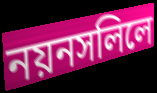
নয়নসলিলে